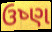
ઉષ્ણ